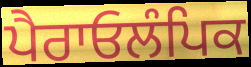
ਪੈਰਾਓਲੰਪਿਕ